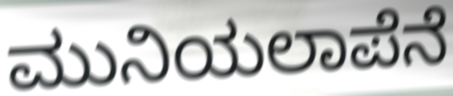
ಮುನಿಯಲಾಪೆನೆ